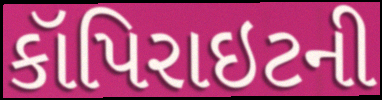
કૉપિરાઇટની